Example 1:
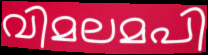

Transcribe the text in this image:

വിമലമപി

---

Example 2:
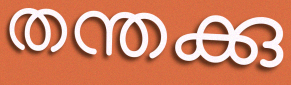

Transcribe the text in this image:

തന്തക്കു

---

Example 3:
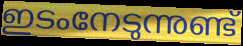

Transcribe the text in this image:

ഇടംനേടുന്നുണ്ട്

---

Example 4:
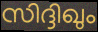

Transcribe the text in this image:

സിദ്ദിഖും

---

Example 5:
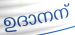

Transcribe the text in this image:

ഉദാനന്